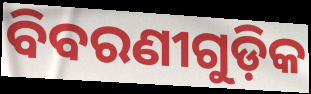
ବିବରଣୀଗୁଡ଼ିକ